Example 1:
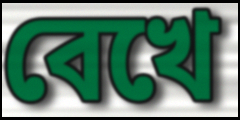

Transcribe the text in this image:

বেখে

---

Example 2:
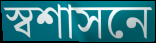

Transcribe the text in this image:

স্বশাসনে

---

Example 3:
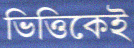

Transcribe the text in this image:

ভিত্তিকেই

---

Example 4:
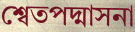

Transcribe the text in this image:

শ্বেতপদ্মাসনা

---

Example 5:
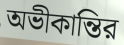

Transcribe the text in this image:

অভীকান্তির